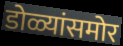
डोळ्यांसमोर